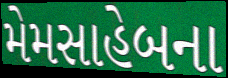
મેમસાહેબના